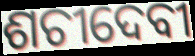
ଶଚୀଦେବୀ